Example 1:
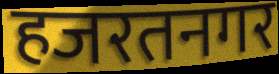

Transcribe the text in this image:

हजरतनगर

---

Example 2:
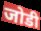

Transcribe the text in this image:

जोडी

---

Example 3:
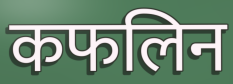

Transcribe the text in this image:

कफलिन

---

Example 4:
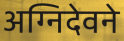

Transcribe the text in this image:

अग्निदेवने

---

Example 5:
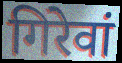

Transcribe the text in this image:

गिरेवां